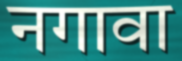
नगावा